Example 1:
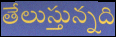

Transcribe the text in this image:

తేలుస్తున్నది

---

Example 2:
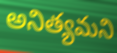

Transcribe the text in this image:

అనిత్యమని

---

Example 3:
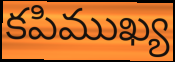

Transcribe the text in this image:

కపిముఖ్య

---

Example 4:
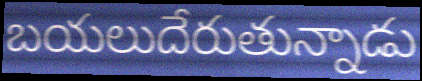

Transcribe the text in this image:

బయలుదేరుతున్నాడు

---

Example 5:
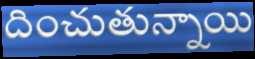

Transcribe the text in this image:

దించుతున్నాయి